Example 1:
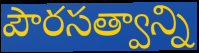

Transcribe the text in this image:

పౌరసత్వాన్ని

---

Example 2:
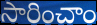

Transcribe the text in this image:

సారించాం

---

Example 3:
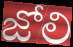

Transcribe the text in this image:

జోలి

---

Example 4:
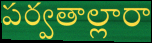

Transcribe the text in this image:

పర్వతాల్లారా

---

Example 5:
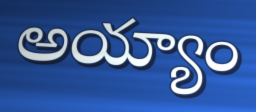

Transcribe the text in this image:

అయ్యాం